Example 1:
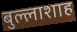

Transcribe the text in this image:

बुल्लाशाह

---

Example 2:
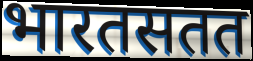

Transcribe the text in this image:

भारतसतत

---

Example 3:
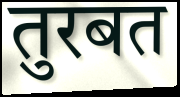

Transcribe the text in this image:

तुरबत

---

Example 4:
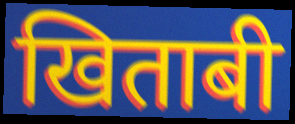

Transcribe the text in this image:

खिताबी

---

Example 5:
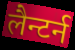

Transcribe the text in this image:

लैन्टर्न